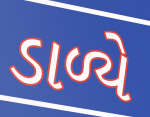
ડાળ્યે